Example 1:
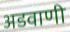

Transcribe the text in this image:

अडवाणी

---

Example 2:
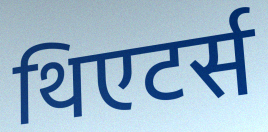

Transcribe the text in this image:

थिएटर्स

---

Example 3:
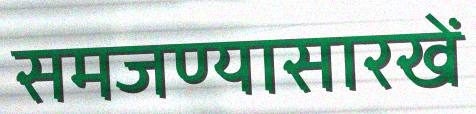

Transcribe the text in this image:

समजण्यासारखें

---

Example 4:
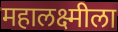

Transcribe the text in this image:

महालक्ष्मीला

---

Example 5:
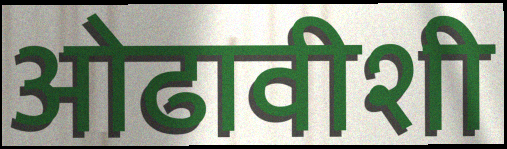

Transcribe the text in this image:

ओढावीशी